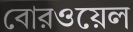
বোরওয়েল